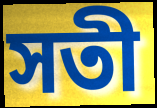
সতী